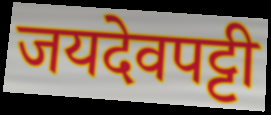
जयदेवपट्टी